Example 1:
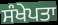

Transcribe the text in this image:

ਸੰਖੇਪਤਾ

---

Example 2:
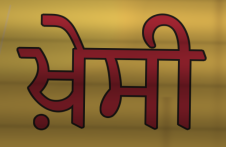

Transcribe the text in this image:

ਖ਼ੇਸੀ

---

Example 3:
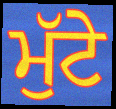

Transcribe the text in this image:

ਮੁੱਟੇ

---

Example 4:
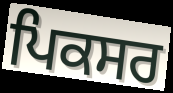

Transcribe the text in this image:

ਪਿਕਸਰ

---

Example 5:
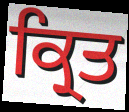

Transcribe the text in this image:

ਕ੍ਰਿਤ